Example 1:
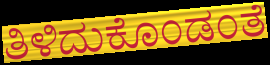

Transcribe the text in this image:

ತಿಳಿದುಕೊಂಡಂತೆ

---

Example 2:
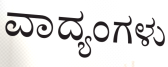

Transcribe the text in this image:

ವಾದ್ಯಂಗಳು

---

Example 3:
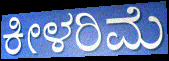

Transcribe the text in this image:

ಕೀಳರಿಮೆ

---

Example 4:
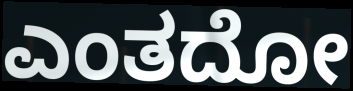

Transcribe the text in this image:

ಎಂತದೋ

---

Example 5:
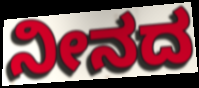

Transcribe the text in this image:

ನೀನದ